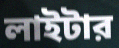
লাইটার